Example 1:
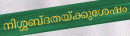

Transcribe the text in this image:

നിശ്ശബ്ദതയ്ക്കുശേഷം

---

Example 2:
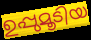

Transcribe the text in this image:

ഉപ്പുമൂടിയ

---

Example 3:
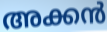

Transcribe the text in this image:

അക്കൻ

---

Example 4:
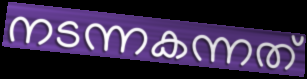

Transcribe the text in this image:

നടന്നകന്നത്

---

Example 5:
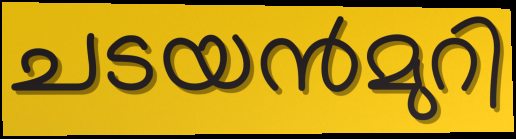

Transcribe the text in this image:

ചടയൻമുറി